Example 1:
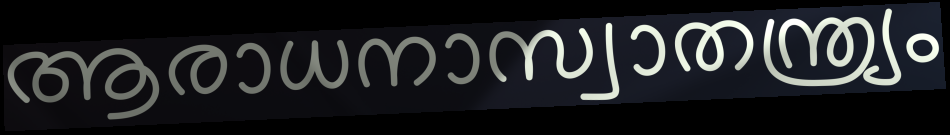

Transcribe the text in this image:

ആരാധനാസ്വാതന്ത്ര്യം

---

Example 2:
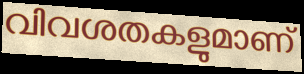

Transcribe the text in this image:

വിവശതകളുമാണ്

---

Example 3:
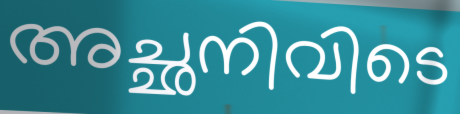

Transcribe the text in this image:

അച്ഛനിവിടെ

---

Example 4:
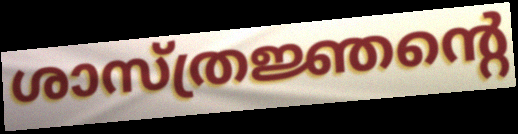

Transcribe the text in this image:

ശാസ്ത്രജ്ഞന്റെ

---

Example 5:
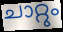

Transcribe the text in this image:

ചാറ്റും